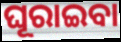
ଘୂରାଇବା